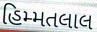
હિમ્મતલાલ